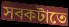
সবকটাতে